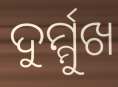
ଦୁର୍ମ୍ମୁଖ